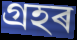
গ্ৰহৰ